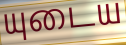
யுடைய